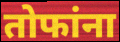
तोफांना